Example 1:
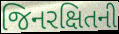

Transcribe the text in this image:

જિનરક્ષિતની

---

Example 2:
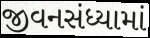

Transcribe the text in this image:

જીવનસંધ્યામાં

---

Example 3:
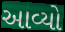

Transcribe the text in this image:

આવ્યો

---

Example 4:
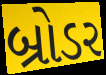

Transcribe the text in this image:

બ્રોડર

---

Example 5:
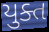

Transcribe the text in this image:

યુક્ત